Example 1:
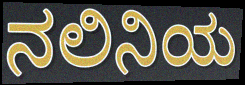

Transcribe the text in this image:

ನಲಿನಿಯ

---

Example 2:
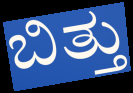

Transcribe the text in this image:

ಬಿತ್ತು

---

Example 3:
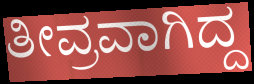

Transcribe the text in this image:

ತೀವ್ರವಾಗಿದ್ದ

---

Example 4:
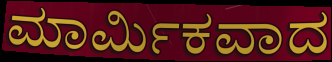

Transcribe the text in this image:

ಮಾರ್ಮಿಕವಾದ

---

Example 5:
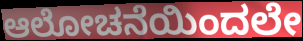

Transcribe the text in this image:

ಆಲೋಚನೆಯಿಂದಲೇ